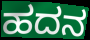
ಹದನ